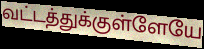
வட்டத்துக்குள்ளேயே